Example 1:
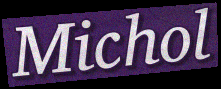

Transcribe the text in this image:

Michol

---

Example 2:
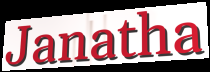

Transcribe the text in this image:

Janatha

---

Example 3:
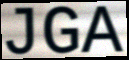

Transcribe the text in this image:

JGA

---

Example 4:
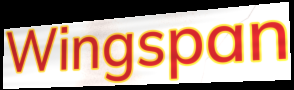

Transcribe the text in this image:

Wingspan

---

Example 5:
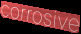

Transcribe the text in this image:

corrosive